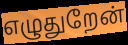
எழுதுறேன்